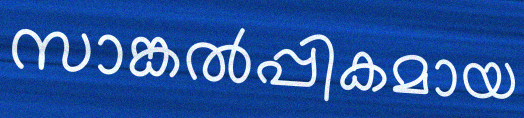
സാങ്കൽപ്പികമായ